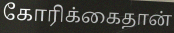
கோரிக்கைதான்